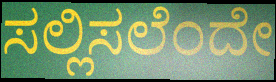
ಸಲ್ಲಿಸಲೆಂದೇ